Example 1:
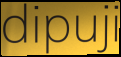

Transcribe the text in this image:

dipuji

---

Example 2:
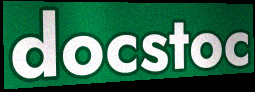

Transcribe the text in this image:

docstoc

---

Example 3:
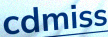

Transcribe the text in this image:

cdmiss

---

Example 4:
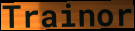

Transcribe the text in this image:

Trainor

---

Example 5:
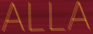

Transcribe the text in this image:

ALLA